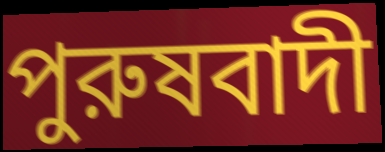
পুরুষবাদী